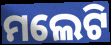
ମଲେଟି